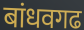
बांधवगढ